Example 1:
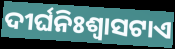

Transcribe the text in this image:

ଦୀର୍ଘନିଃଶ୍ୱାସଟାଏ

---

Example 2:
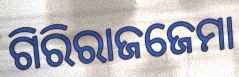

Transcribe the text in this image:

ଗିରିରାଜଜେମା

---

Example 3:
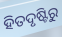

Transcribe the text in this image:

ହିତଦୃଷ୍ଟିରୁ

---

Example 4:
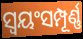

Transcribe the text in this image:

ସ୍ବୟଂସମ୍ପୂର୍ଣ୍ଣ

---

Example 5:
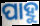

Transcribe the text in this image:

ପାହୁ